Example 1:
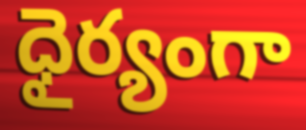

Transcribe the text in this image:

ధైర్యంగా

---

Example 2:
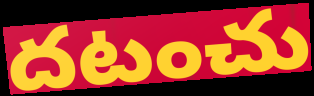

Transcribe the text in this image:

దటంచు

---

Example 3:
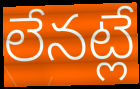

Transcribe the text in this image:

లేనట్లే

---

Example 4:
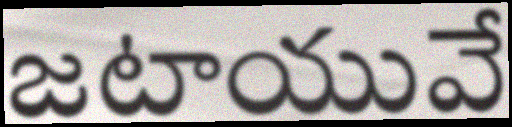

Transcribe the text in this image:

జటాయువే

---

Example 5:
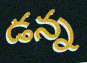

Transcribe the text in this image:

డన్న